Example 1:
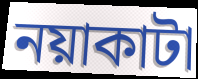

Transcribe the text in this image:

নয়াকাটা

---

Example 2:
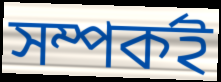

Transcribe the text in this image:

সম্পর্কই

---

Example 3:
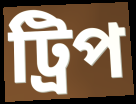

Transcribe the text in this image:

ট্রিপ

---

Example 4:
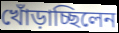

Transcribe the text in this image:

খোঁড়াচ্ছিলেন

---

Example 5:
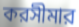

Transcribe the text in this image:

করসীমার